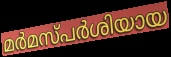
മർമസ്പർശിയായ